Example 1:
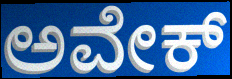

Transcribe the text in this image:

ಅವೇಕ್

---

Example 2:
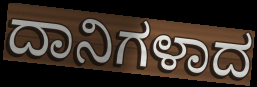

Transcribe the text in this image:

ದಾನಿಗಳಾದ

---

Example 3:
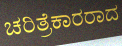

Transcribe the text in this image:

ಚರಿತ್ರೆಕಾರರಾದ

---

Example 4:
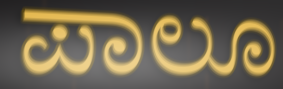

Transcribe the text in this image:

ಪಾಲೂ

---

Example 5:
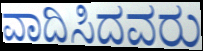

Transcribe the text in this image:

ವಾದಿಸಿದವರು